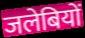
जलेबियों